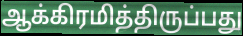
ஆக்கிரமித்திருப்பது